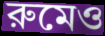
রুমেও